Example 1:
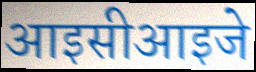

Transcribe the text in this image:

आइसीआइजे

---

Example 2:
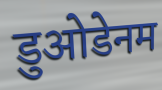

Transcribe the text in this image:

डुओडेनम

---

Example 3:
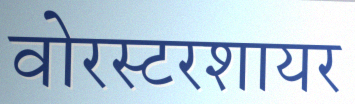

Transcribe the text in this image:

वोरस्टरशायर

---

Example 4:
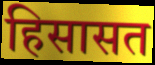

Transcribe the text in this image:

हिसासत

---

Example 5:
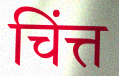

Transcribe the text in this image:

चिंत्त